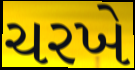
ચરખે